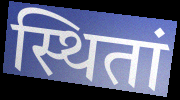
स्थितां